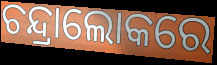
ଚନ୍ଦ୍ରାଲୋକରେ